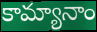
కామ్యానాం